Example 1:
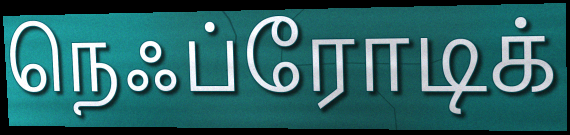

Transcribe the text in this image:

நெஃப்ரோடிக்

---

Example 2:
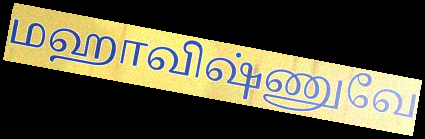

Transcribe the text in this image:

மஹாவிஷ்ணுவே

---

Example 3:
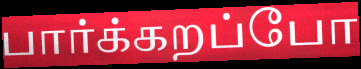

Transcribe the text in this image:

பார்க்கறப்போ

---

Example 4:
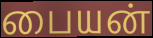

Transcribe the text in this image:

பையன்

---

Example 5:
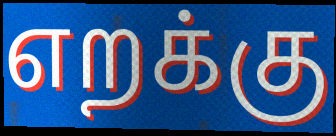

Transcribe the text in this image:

எறக்கு